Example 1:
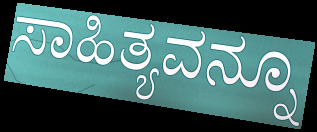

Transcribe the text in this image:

ಸಾಹಿತ್ಯವನ್ನೂ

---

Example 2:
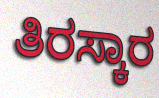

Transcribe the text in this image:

ತಿರಸ್ಕಾರ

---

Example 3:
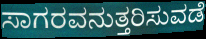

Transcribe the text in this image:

ಸಾಗರವನುತ್ತರಿಸುವಡೆ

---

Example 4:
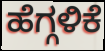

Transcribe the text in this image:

ಹೆಗ್ಗಳಿಕೆ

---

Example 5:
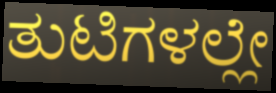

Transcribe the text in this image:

ತುಟಿಗಳಲ್ಲೇ